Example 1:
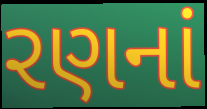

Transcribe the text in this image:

રણનાં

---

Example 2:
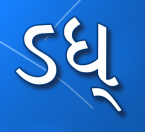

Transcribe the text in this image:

ઽધ્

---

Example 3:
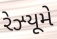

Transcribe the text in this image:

રેઝ્યૂમે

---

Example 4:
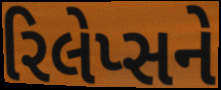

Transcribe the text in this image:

રિલેપ્સને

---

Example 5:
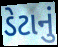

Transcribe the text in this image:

ડેટાનું